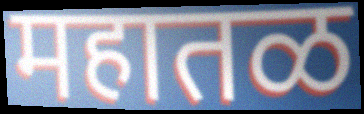
महातळ